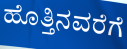
ಹೊತ್ತಿನವರೆಗೆ